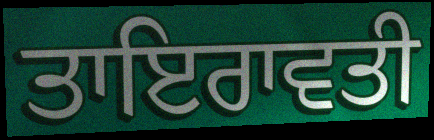
ਤਾਇਰਾਵਤੀ